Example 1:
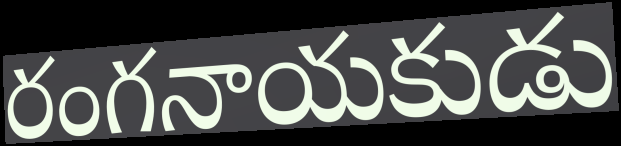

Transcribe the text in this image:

రంగనాయకుడు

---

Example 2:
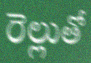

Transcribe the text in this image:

రెల్లుతో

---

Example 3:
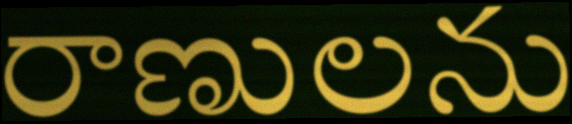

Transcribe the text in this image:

రాణులను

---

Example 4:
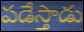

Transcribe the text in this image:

పడేస్తాడు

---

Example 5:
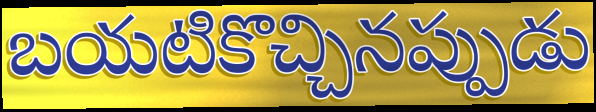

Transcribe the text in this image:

బయటికొచ్చినప్పుడు